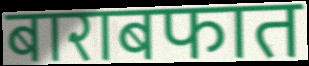
बाराबफात